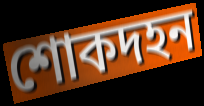
শোকদহন